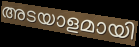
അടയാളമായി